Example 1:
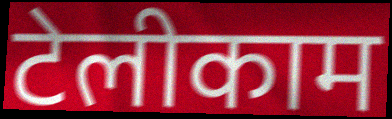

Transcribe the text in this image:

टेलीकाम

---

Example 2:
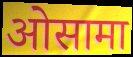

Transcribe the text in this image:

ओसामा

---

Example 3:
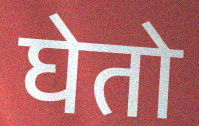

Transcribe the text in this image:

घेतो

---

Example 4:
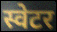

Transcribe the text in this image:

स्वेटर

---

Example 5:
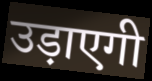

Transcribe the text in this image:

उड़ाएगी